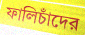
ফালিচাঁদের